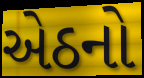
એઠનો